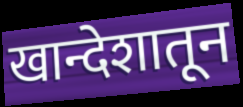
खान्देशातून